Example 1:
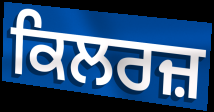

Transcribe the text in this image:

ਕਿਲਰਜ਼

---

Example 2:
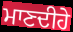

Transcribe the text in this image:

ਮਾਣਦੀਹੇ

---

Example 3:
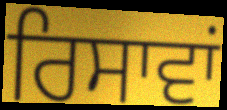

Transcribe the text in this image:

ਰਿਸਾਵਾਂ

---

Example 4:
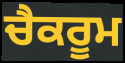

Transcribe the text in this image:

ਚੈਕਰੂਮ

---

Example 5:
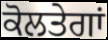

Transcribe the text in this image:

ਕੋਲਤੇਗਾਂ